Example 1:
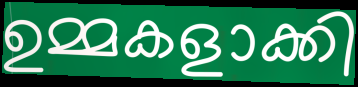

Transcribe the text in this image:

ഉമ്മകളാക്കി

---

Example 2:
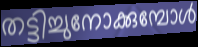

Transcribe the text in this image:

തട്ടിച്ചുനോക്കുമ്പോൾ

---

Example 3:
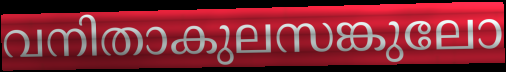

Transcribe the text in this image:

വനിതാകുലസങ്കുലോ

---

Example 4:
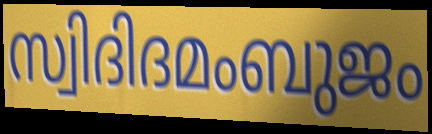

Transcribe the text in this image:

സ്വിദിദമംബുജം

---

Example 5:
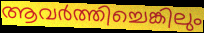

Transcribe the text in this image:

ആവർത്തിച്ചെങ്കിലും